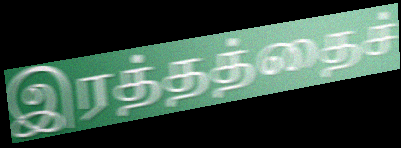
இரத்தத்தைச்